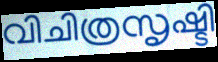
വിചിത്രസൃഷ്ടി